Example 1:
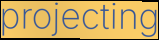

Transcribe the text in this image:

projecting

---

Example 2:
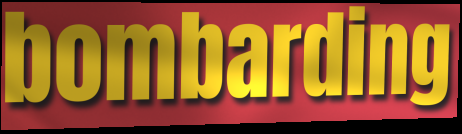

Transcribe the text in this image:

bombarding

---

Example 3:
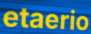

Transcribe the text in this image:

etaerio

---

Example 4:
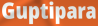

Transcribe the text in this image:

Guptipara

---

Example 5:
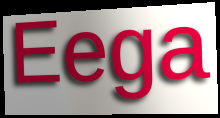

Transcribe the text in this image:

Eega